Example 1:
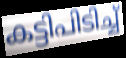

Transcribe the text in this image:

കട്ടിപിടിച്ച്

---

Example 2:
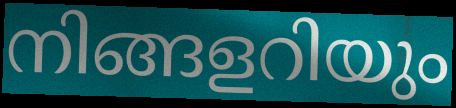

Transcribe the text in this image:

നിങ്ങളറിയും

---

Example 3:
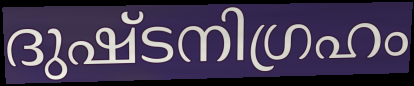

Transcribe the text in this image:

ദുഷ്ടനിഗ്രഹം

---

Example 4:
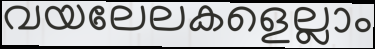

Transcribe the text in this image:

വയലേലകളെല്ലാം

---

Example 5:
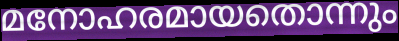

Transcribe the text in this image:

മനോഹരമായതൊന്നും